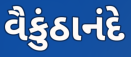
વૈકુંઠાનંદે